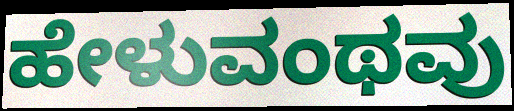
ಹೇಳುವಂಥವು